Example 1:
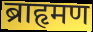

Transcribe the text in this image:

ब्राहृमण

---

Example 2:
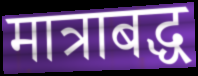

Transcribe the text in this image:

मात्राबद्ध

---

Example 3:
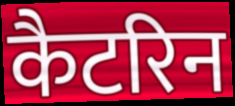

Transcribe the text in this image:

कैटरिन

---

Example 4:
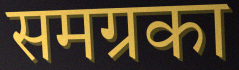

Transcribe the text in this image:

समग्रका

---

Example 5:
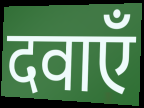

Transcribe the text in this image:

दवाएँ